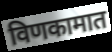
विणकामात